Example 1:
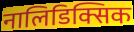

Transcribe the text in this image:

नालिडिक्सिक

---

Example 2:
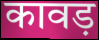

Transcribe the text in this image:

कावड़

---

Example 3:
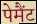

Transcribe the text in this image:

पेमैंट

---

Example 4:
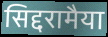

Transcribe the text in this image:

सिद्दरामैया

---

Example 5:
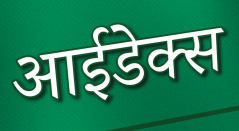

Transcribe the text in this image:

आईडेक्स